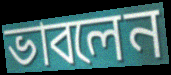
ভাবলেন